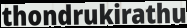
thondrukirathu